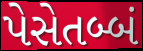
પેસેતબ્બં